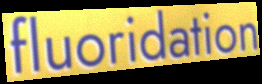
fluoridation